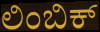
ಲಿಂಬಿಕ್